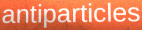
antiparticles